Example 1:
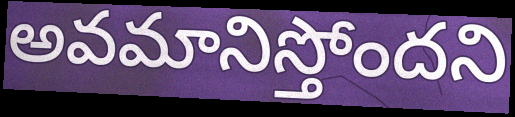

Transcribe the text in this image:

అవమానిస్తోందని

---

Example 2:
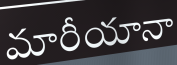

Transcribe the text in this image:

మారీయానా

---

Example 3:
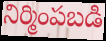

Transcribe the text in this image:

నిర్మింపబడి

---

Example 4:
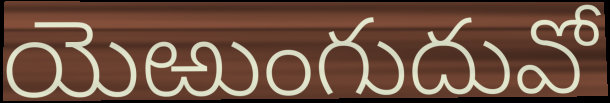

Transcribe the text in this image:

యెఱుంగుదువో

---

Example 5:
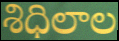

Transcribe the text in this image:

శిధిలాల